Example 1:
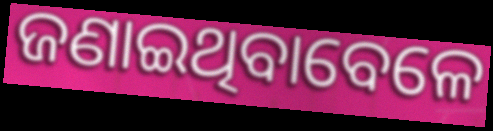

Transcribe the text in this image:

ଜଣାଇଥିବାବେଳେ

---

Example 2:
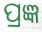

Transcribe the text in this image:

ପ୍ରଜ୍ଞ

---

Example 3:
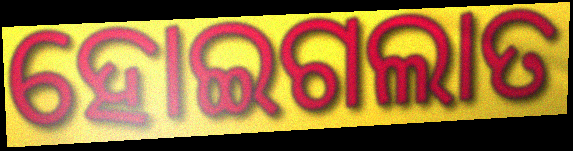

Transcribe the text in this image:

ହୋଇଗଲାତ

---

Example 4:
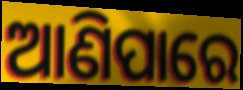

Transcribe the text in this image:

ଆଣିପାରେ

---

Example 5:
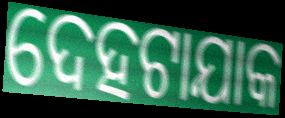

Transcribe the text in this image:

ଦେହଟାଯାକ